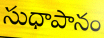
సుధాపానం